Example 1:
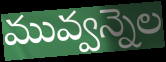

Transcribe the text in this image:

మువ్వన్నెల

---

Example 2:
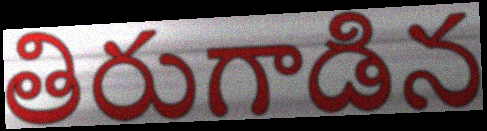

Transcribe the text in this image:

తిరుగాడిన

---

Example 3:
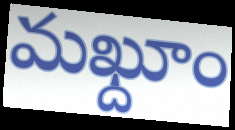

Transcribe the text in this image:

మఖ్దూం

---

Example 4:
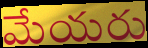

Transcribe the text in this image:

మేయరు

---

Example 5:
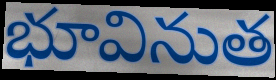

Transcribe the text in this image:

భూవినుత